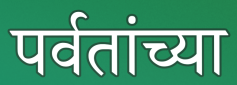
पर्वतांच्या